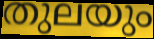
തുലയും